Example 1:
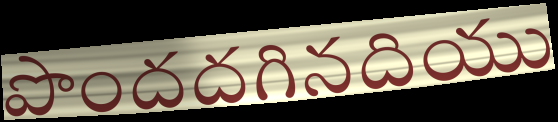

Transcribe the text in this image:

పొందదగినదియు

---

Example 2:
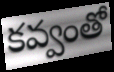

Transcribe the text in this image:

కవ్వంతో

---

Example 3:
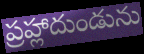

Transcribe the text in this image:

ప్రహ్లాదుండును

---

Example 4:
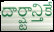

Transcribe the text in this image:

దార్ష్టాన్తికే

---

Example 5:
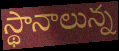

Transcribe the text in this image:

స్థానాలున్న